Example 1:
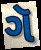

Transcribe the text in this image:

ગૅ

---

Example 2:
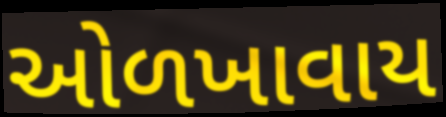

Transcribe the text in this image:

ઓળખાવાય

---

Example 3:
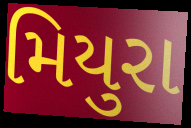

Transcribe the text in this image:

મિયુરા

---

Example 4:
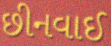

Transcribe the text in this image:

છીનવાઈ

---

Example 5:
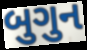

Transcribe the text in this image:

બુગુન